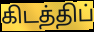
கிடத்திப்